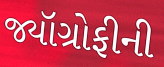
જ્યૉગ્રોફીની